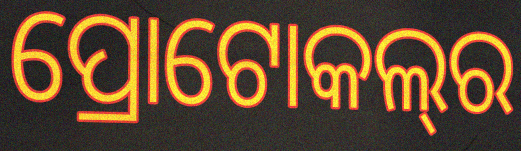
ପ୍ରୋଟୋକଲ୍‌ର